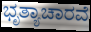
ಭೃತ್ಯಾಚಾರವೆ